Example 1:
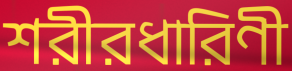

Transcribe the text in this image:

শরীরধারিণী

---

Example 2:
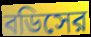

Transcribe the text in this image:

বডিসের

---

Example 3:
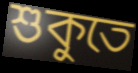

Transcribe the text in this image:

শুকুতে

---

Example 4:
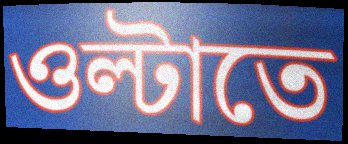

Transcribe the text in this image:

ওল্টাতে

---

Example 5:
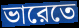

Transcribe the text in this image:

ভারেতে